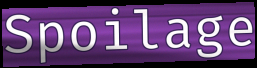
Spoilage